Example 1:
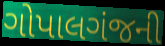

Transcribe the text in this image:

ગોપાલગંજની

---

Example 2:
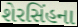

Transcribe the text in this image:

શેરસિંહના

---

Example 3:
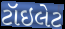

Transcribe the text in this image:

ટૉઇલેટ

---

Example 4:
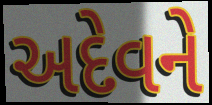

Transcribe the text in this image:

અદેવને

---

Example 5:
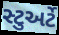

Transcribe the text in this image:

સ્ટુઅર્ટે